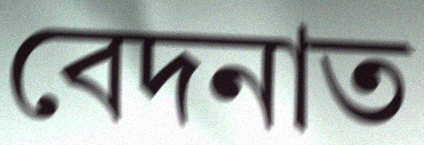
বেদনাত